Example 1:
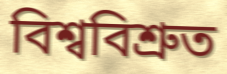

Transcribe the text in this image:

বিশ্ববিশ্ৰুত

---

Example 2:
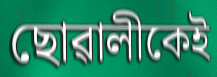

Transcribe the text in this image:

ছোৱালীকেই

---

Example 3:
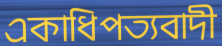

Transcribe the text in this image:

একাধিপত্যবাদী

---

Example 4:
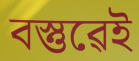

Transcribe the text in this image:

বস্তুৱেই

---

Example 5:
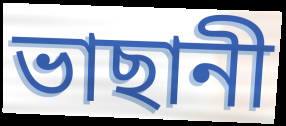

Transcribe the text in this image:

ভাছানী